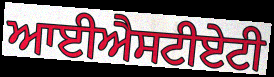
ਆਈਐਸਟੀਏਟੀ